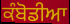
ਕੰਬੋਡੀਆ